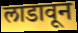
लाडावून